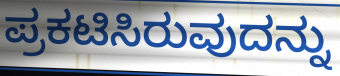
ಪ್ರಕಟಿಸಿರುವುದನ್ನು